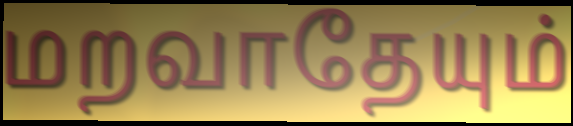
மறவாதேயும்